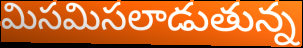
మిసమిసలాడుతున్న